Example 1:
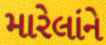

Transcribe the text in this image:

મારેલાંને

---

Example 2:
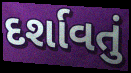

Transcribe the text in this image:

દર્શાવતું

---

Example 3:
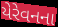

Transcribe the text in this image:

યેરેવનના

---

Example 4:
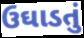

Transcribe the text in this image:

ઉઘાડતું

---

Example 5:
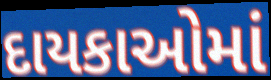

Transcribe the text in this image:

દાયકાઓમાં